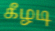
கீழடி